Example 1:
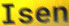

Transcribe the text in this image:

Isen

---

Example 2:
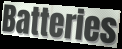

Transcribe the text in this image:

Batteries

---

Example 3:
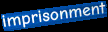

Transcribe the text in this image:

imprisonment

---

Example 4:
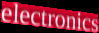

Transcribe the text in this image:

electronics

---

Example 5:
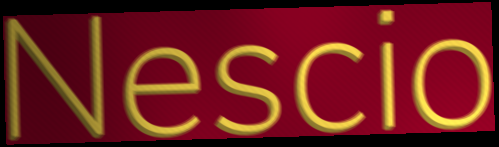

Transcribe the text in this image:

Nescio